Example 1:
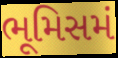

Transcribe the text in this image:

ભૂમિસમં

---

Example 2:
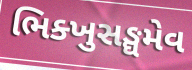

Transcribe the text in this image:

ભિક્ખુસઙ્ઘમેવ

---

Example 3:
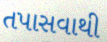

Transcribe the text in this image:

તપાસવાથી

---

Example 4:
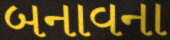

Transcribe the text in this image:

બનાવના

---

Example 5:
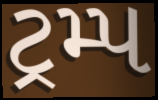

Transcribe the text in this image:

ટ્રમ્પ